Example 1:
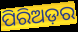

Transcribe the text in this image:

ପିରିଅଡ଼ର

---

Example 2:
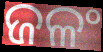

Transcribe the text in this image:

ଜଳଂ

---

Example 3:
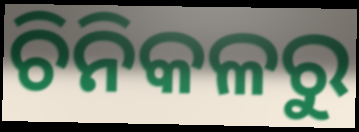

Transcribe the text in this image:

ଚିନିକଳରୁ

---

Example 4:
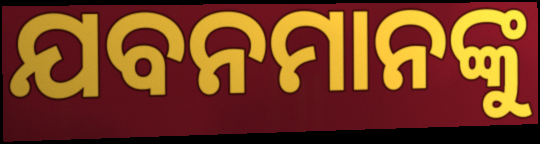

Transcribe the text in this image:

ଯବନମାନଙ୍କୁ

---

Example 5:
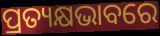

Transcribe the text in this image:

ପ୍ରତ୍ୟକ୍ଷଭାବରେ